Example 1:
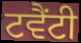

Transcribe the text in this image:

ਟਵੈਂਟੀ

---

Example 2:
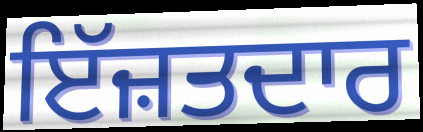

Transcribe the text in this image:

ਇੱਜ਼ਤਦਾਰ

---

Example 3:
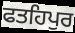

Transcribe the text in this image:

ਫਤਹਿਪੁਰ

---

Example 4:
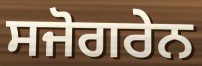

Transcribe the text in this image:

ਸਜੋਗਰੇਨ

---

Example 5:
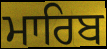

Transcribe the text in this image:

ਮਾਰਿਬ